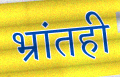
भ्रांतही